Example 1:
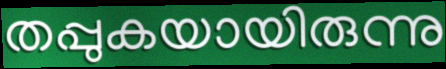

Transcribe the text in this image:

തപ്പുകയായിരുന്നു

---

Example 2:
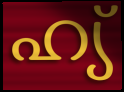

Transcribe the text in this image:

ഹ്യ്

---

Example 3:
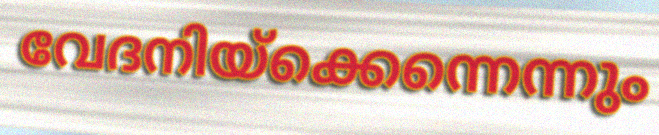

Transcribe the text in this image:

വേദനിയ്ക്കെന്നെന്നും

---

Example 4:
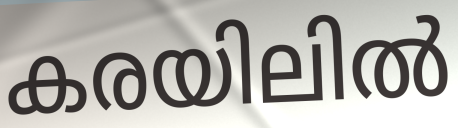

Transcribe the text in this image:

കരയിലിൽ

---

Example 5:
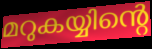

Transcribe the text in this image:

മറുകയ്യിന്റെ